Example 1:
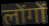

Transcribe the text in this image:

लोंगों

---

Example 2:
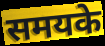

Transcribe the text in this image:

समयके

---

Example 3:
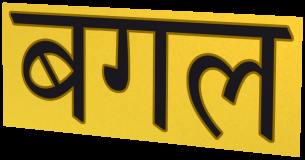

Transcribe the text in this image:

बगल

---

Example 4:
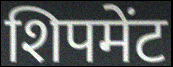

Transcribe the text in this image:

शिपमेंट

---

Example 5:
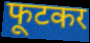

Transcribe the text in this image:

फूटकर